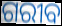
ଗରୀବ